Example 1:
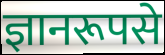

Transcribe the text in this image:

ज्ञानरूपसे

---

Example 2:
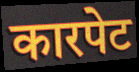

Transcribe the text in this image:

कारपेट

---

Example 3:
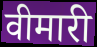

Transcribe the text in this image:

वीमारी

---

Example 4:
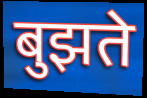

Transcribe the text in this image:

बुझते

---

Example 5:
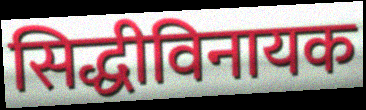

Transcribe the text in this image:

सिद्धीविनायक